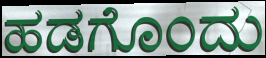
ಹಡಗೊಂದು